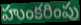
హుంకరింపు